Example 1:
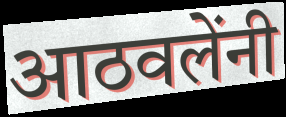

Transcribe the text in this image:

आठवलेंनी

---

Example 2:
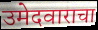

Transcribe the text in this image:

उमेदवाराचा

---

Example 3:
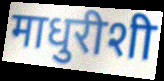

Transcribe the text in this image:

माधुरीशी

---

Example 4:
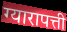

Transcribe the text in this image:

ग्यारापत्ती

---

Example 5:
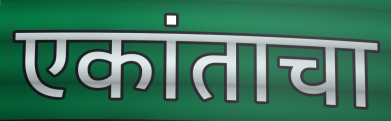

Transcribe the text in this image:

एकांताचा